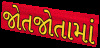
જોતજોતામાં